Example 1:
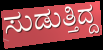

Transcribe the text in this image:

ಸುಡುತ್ತಿದ್ದ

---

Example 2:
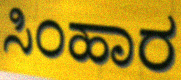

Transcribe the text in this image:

ಸಿಂಹಾರ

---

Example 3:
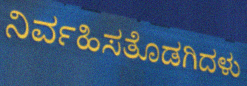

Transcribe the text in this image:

ನಿರ್ವಹಿಸತೊಡಗಿದಳು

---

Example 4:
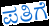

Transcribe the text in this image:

ಪತಿಗೆ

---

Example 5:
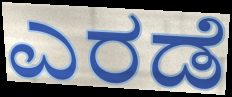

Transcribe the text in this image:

ಎರಡೆ